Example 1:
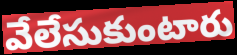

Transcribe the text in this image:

వేలేసుకుంటారు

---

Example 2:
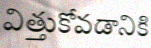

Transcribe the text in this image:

విత్తుకోవడానికి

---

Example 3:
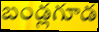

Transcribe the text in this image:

బండ్లగూడ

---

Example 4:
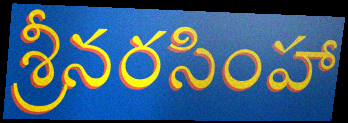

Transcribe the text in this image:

శ్రీనరసింహా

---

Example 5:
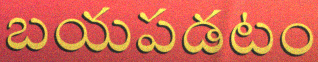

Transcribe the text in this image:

బయపడటం